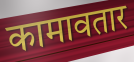
कामावतार